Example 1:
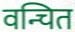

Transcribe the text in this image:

वन्चित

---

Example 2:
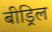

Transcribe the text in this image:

बीड्रिल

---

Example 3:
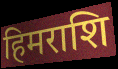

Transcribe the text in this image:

हिमराशि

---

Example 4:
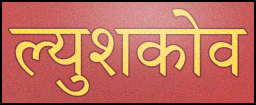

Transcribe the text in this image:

ल्युशकोव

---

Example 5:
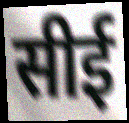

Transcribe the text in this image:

सीई